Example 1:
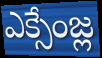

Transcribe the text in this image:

ఎక్సేంజ్ల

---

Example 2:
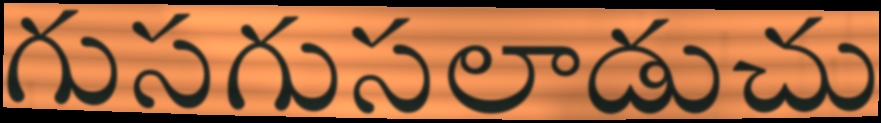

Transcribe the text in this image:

గుసగుసలాడుచు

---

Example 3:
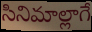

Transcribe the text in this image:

సినిమాల్లాగే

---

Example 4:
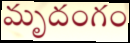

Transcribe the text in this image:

మృదంగం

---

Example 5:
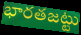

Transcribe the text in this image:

భారతజట్టు